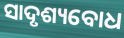
ସାଦୃଶ୍ୟବୋଧ